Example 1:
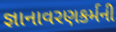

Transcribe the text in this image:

જ્ઞાનાવરણકર્મની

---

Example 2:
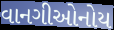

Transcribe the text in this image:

વાનગીઓનોય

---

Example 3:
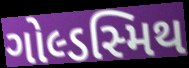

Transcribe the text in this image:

ગોલ્ડસ્મિથ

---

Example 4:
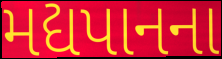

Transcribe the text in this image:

મદ્યપાનના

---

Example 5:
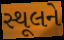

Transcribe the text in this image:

સ્થૂલને